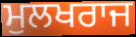
ਮੁਲਖਰਾਜ